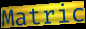
Matric